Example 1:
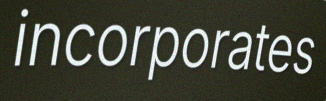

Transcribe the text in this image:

incorporates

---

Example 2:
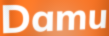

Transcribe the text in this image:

Damu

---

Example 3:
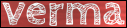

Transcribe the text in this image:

verma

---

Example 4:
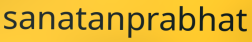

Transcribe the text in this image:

sanatanprabhat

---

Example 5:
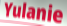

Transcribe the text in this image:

Yulanie